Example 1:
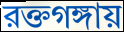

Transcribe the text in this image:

রক্তগঙ্গায়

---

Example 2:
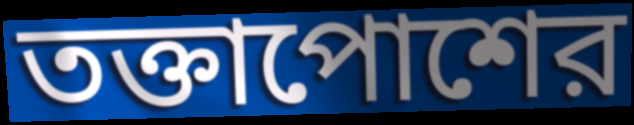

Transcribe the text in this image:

তক্তাপোশের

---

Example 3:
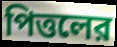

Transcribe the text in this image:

পিত্তলের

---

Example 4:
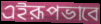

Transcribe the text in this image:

এইরূপভাবে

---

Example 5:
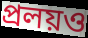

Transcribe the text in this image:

প্রলয়ও